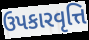
ઉપકારવૃત્તિ